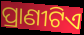
ପ୍ରାଣୀଟିଏ